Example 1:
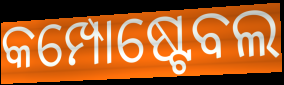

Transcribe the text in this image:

କମ୍ପୋଷ୍ଟେବଲ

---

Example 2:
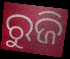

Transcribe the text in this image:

ରୁଜି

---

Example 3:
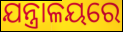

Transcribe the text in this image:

ଯନ୍ତ୍ରାଳୟରେ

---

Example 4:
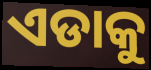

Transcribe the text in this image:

ଏଡାକୁ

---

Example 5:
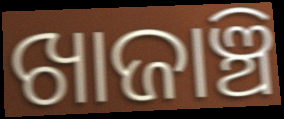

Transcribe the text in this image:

ଖାଜାଞ୍ଚି